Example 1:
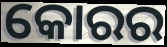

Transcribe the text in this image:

କୋରର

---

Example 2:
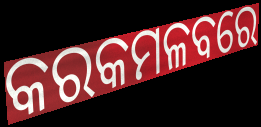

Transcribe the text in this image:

କରକମଳବରେ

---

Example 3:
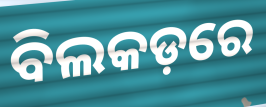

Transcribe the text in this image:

ବିଲକଡ଼ରେ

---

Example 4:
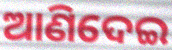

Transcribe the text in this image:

ଆଣିଦେଇ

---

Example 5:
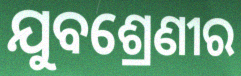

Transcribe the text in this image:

ଯୁବଶ୍ରେଣୀର